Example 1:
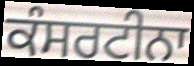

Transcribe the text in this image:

ਕੰਸਰਟੀਨਾ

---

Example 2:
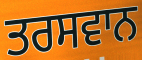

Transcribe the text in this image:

ਤਰਸਵਾਨ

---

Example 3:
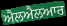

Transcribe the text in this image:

ਐਲਐਲਆਰ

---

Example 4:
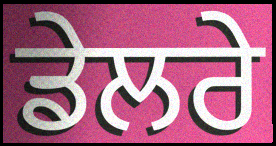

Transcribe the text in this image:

ਡੇਲਰੇ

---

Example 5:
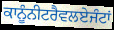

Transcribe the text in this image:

ਕਾਨੂੰਨੀਟਰੈਵਲਏਜੰਟਾਂ